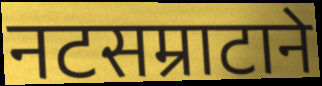
नटसम्राटाने